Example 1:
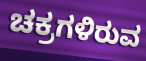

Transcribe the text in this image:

ಚಕ್ರಗಳಿರುವ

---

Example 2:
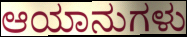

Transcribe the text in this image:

ಆಯಾನುಗಳು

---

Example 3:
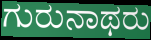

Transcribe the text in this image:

ಗುರುನಾಥರು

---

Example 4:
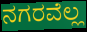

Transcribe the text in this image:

ನಗರವೆಲ್ಲ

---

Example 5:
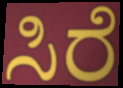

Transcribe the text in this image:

ಸಿರೆ